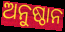
ଅନୁଷ୍ଠାନ